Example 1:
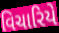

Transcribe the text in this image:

વિચારિયે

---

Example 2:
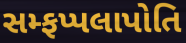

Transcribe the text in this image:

સમ્ફપ્પલાપોતિ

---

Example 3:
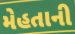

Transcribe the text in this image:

મેહતાની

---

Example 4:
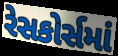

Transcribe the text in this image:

રેસકોર્સમાં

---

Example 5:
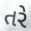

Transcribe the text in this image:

તરે